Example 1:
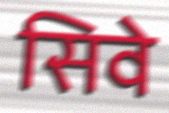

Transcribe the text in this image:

सिवे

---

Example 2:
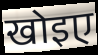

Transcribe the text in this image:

खोइए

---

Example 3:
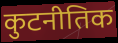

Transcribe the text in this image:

कुटनीतिक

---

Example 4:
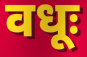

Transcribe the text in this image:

वधूः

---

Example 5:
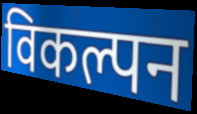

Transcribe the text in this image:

विकल्पन